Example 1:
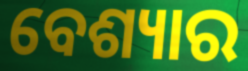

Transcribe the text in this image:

ବେଶ୍ୟାର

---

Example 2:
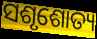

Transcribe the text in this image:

ସଶୃଶୋତ୍ୟ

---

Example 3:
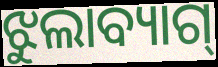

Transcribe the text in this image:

ଝୁଲାବ୍ୟାଗ୍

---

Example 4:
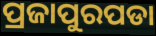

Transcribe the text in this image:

ପ୍ରଜାପୁରପଡା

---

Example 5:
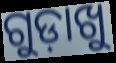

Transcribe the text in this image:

ଗୁଡ଼ାଖୁ